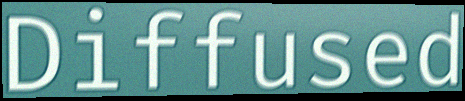
Diffused